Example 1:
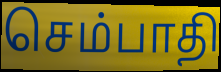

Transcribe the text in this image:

செம்பாதி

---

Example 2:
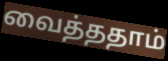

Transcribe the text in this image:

வைத்ததாம்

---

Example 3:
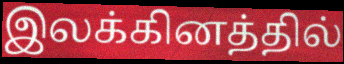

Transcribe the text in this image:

இலக்கினத்தில்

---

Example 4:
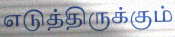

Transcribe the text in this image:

எடுத்திருக்கும்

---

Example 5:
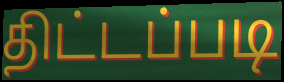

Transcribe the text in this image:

திட்டப்படி